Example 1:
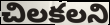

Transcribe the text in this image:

చిలకలని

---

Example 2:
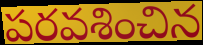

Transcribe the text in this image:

పరవశించిన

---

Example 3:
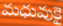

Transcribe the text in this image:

మధువుకై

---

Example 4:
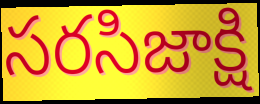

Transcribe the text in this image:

సరసిజాక్షి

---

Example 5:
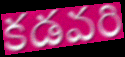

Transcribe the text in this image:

కడవరి